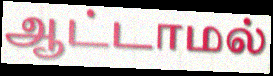
ஆட்டாமல்